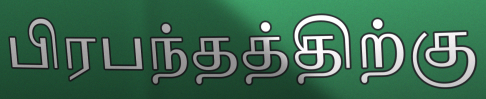
பிரபந்தத்திற்கு